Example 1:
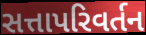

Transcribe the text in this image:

સત્તાપરિવર્તન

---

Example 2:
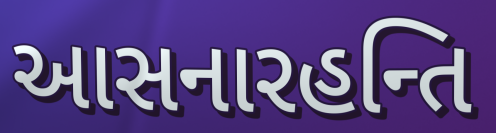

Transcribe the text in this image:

આસનારહન્તિ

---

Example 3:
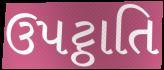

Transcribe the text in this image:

ઉપટ્ઠાતિ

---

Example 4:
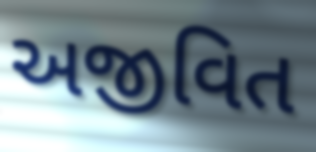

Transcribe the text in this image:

અજીવિત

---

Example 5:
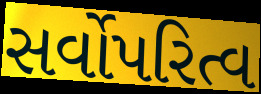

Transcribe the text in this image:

સર્વોપરિત્વ